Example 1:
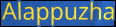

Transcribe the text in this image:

Alappuzha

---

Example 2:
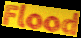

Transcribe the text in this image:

Flood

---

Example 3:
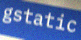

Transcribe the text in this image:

gstatic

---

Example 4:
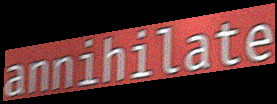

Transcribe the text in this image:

annihilate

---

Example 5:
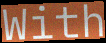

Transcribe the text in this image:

With